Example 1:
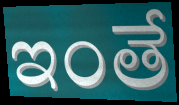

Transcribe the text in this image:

ఇంతే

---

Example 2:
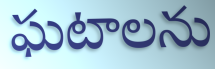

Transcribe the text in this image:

ఘటాలను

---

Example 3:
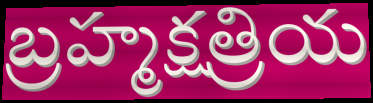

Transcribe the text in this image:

బ్రహ్మక్షత్రియ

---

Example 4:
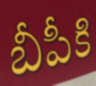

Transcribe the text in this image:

బీపీకి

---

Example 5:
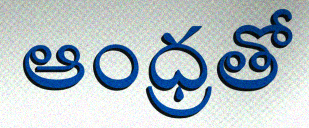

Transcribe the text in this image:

ఆంధ్రతో